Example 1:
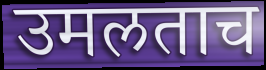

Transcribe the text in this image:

उमलताच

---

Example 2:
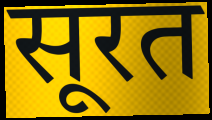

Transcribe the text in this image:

सूरत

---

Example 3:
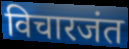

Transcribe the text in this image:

विचारजंत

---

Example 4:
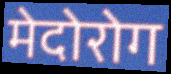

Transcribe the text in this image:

मेदोरोग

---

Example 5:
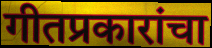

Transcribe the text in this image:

गीतप्रकारांचा